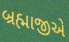
બ્રહ્માજીએ